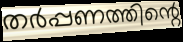
തർപ്പണത്തിന്റെ